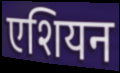
एशियन